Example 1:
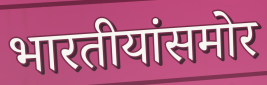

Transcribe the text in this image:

भारतीयांसमोर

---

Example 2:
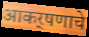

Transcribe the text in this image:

आकर्षणाचे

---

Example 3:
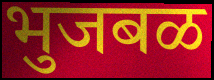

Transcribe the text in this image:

भुजबळ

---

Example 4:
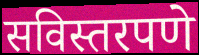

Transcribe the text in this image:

सविस्तरपणे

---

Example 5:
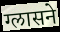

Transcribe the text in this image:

ग्लासने